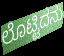
ಲೊಟ್ಟಿದನು